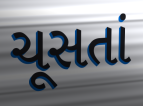
ચૂસતાં